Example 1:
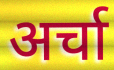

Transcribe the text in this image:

अर्चा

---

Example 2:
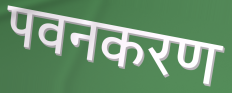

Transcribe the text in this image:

पवनकरण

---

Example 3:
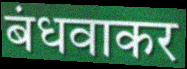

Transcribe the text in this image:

बंधवाकर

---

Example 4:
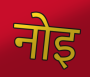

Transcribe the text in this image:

नोइ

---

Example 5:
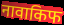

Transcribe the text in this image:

नावाकिफ